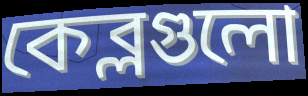
কেব্লগুলো